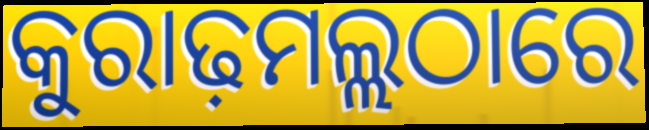
କୁରାଢ଼ମଲ୍ଲଠାରେ